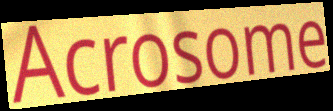
Acrosome